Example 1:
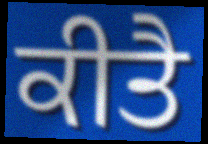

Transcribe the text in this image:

ਕੀਤੈ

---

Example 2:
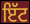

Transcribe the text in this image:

ਇੱਟ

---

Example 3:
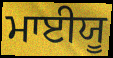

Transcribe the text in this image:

ਮਾਈਯੂ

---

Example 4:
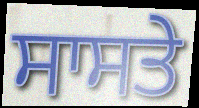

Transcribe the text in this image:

ਸਾਸਤੇ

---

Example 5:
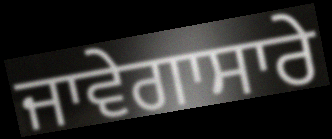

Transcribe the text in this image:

ਜਾਵੇਗਾਸਾਰੇ